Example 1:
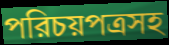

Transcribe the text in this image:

পরিচয়পত্রসহ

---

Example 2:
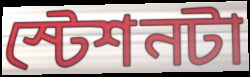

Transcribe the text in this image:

স্টেশনটা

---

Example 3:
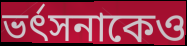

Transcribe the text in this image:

ভর্ৎসনাকেও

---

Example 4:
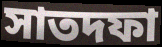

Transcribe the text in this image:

সাতদফা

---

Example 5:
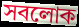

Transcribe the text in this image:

সবলোক